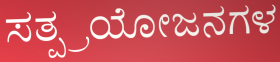
ಸತ್ಪ್ರಯೋಜನಗಳ